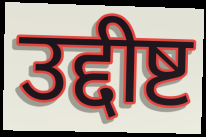
उद्दीष्ट